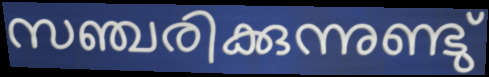
സഞ്ചരിക്കുന്നുണ്ടു്